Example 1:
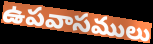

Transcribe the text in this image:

ఉపవాసములు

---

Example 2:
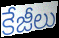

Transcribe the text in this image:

కేజీలు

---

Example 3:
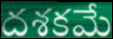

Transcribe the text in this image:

దశకమే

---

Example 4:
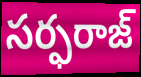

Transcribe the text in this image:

సర్ఫరాజ్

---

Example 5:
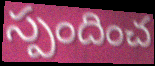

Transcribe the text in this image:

స్పందించ